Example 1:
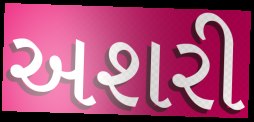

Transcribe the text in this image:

અશરી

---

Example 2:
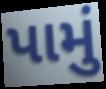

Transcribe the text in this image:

પામું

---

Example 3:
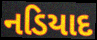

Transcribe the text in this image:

નડિયાદ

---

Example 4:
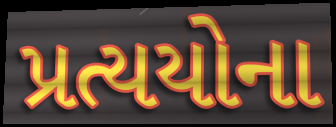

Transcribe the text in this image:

પ્રત્યયોના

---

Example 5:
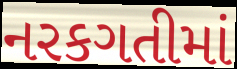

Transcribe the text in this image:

નરકગતીમાં